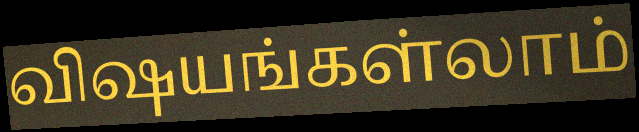
விஷயங்கள்லாம்